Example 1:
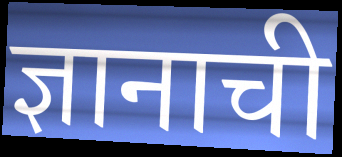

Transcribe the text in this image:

ज्ञानाची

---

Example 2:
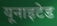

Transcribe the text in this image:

यूनाइटेड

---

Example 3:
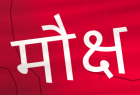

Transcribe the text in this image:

मौक्ष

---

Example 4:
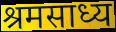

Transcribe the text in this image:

श्रमसाध्य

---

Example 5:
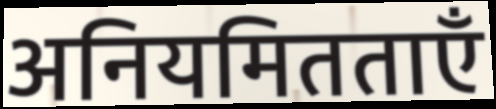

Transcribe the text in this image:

अनियमितताएँ